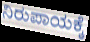
ನಿರುಪಾಯಕ್ಕೆ